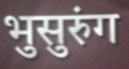
भुसुरुंग